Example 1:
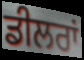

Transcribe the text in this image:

ਡੀਲਰਾਂ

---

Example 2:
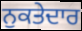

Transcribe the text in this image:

ਨੁਕਤੇਦਾਰ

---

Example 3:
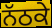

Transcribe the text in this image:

ਨੱਠਕੇ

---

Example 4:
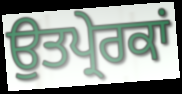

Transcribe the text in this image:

ਉਤਪ੍ਰੇਰਕਾਂ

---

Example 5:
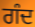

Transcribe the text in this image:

ਗੰਦ